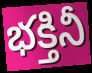
భక్తినీ